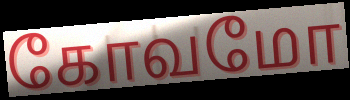
கோவமோ